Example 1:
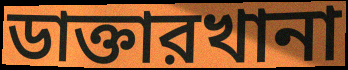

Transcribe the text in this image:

ডাক্তারখানা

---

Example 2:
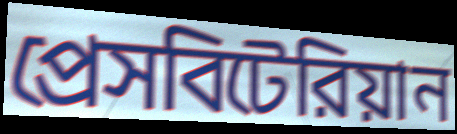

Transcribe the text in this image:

প্রেসবিটেরিয়ান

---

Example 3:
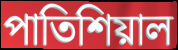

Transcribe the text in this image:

পাতিশিয়াল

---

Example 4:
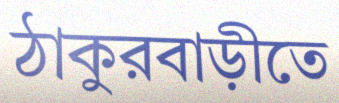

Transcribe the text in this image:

ঠাকুরবাড়ীতে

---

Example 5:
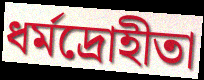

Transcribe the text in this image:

ধর্মদ্রোহীতা